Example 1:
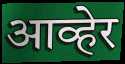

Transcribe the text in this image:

आव्हेर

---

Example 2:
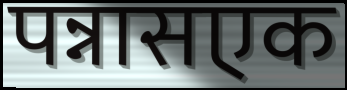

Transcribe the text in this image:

पन्नासएक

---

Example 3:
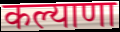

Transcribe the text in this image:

कल्याणा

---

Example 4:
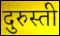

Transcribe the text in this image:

दुरुस्ती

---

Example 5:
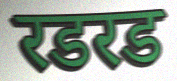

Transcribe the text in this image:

रडरड